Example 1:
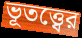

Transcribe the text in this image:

ভূতত্ত্বের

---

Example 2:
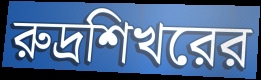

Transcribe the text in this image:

রুদ্রশিখরের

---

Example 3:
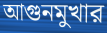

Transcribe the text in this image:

আগুনমুখার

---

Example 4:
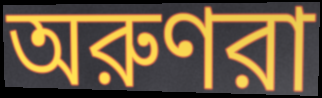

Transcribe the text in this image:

অরুণরা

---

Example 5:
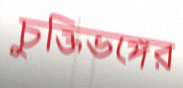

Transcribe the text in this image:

চুক্তিভঙ্গের